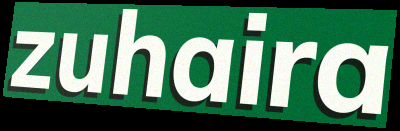
zuhaira